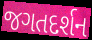
જગતદર્શન